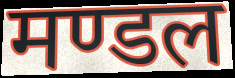
मण्डल